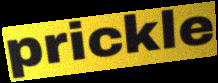
prickle